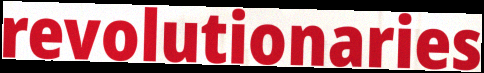
revolutionaries